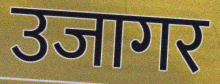
उजागर